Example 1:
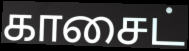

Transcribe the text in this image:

காசைட்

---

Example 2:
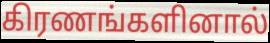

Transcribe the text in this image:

கிரணங்களினால்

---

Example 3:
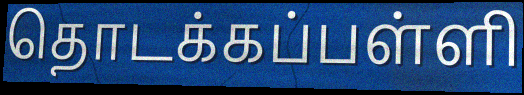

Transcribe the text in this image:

தொடக்கப்பள்ளி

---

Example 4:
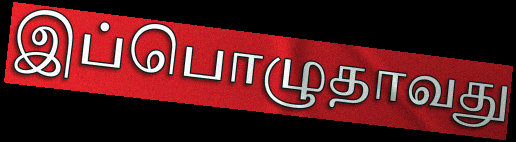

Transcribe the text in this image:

இப்பொழுதாவது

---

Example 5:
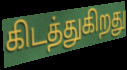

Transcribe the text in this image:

கிடத்துகிறது